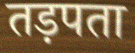
तड़पता